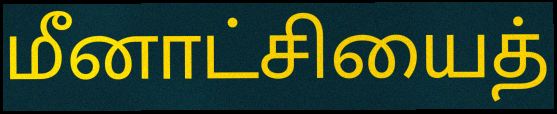
மீனாட்சியைத்